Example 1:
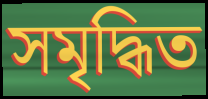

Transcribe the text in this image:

সমৃদ্ধিত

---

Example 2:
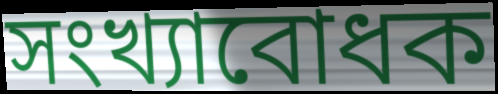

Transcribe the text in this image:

সংখ্যাবোধক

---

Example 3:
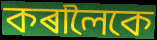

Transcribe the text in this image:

কৰালৈকে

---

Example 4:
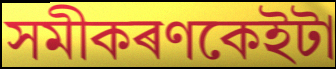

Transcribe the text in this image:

সমীকৰণকেইটা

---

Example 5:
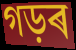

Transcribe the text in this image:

গড়ৰ